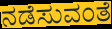
ನಡೆಸುವಂತೆ